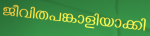
ജീവിതപങ്കാളിയാക്കി